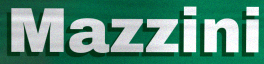
Mazzini